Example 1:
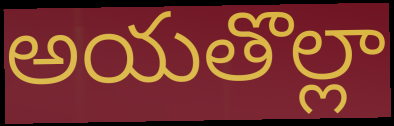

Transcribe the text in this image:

అయతొల్లా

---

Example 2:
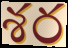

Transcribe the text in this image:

శర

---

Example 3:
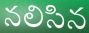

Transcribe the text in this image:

నలిసిన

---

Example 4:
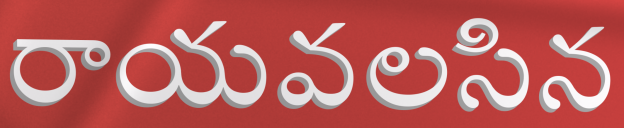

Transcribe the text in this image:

రాయవలసిన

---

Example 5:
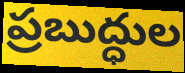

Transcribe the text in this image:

ప్రబుద్ధుల